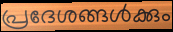
പ്രദേശങ്ങൾക്കും